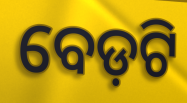
ବେଡ଼ଟି